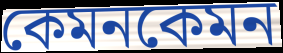
কেমনকেমন